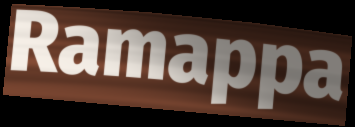
Ramappa